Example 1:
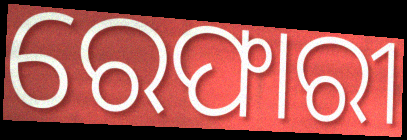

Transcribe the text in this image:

ରେଫାରୀ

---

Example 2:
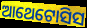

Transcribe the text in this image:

ଆଥେଟୋସିସ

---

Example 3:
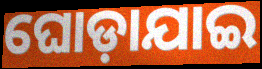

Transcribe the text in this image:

ଘୋଡ଼ାଯାଇ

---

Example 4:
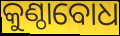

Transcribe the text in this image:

କୁଣ୍ଠାବୋଧ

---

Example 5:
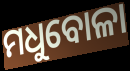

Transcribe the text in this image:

ମଧୁବୋଳା